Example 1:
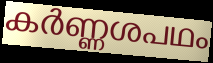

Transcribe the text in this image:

കർണ്ണശപഥം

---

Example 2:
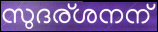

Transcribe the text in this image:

സുദര്ശനന്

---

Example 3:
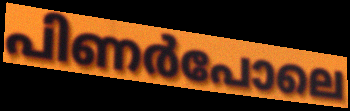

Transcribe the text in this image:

പിണർപോലെ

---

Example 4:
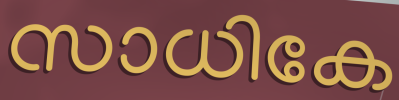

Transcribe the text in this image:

സാധികേ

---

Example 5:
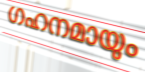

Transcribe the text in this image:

ഗഹനമായും